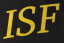
ISF